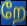
றே